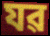
যৱ